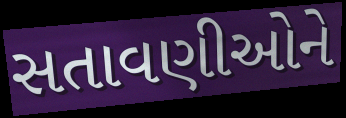
સતાવણીઓને